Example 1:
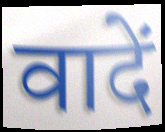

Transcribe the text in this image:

वादें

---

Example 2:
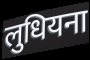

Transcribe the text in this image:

लुधियना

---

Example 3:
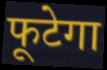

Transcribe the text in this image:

फूटेगा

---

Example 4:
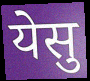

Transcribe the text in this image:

येसु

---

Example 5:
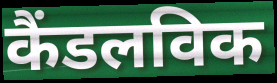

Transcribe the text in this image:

कैंडलविक